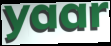
yaar